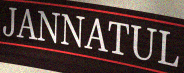
JANNATUL